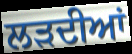
ਲੜਦੀਆਂ